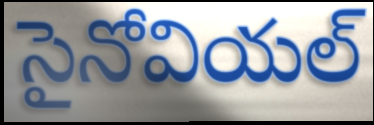
సైనోవియల్